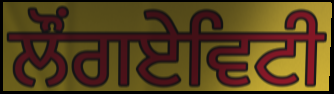
ਲੌਂਗਏਵਿਟੀ